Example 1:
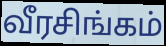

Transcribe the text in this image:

வீரசிங்கம்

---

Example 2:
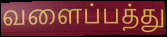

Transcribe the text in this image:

வளைப்பத்து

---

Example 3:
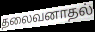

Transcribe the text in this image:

தலைவனாதல்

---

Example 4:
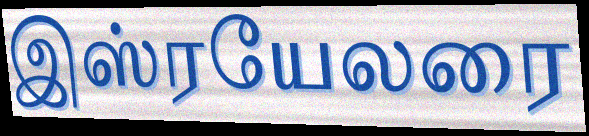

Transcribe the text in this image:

இஸ்ரயேலரை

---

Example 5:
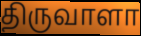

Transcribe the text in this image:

திருவாளா